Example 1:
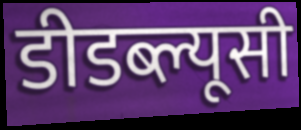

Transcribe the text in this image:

डीडब्ल्यूसी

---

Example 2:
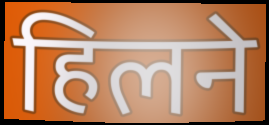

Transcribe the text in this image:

हिलने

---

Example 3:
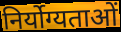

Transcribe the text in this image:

निर्योग्यताओं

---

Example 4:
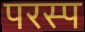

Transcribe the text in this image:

परस्प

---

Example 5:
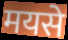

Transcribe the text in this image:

मयसे